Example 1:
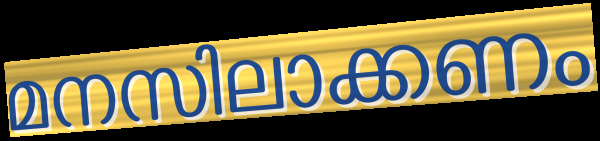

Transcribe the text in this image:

മനസിലാക്കണം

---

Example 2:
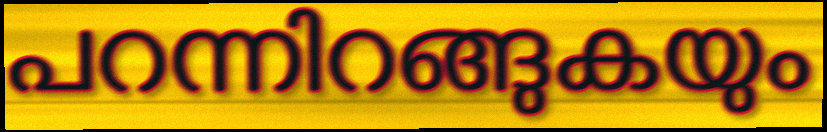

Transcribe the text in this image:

പറന്നിറങ്ങുകയും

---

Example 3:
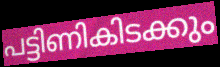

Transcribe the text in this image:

പട്ടിണികിടക്കും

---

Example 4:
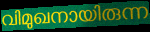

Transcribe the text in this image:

വിമുഖനായിരുന്ന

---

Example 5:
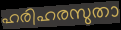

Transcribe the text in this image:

ഹരിഹരസുതാ